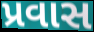
પ્રવાસ